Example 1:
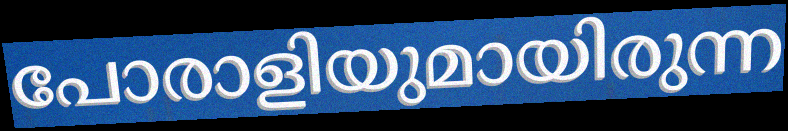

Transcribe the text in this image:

പോരാളിയുമായിരുന്ന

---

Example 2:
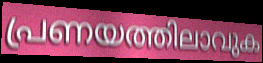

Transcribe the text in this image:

പ്രണയത്തിലാവുക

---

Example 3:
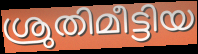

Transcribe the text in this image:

ശ്രുതിമീട്ടിയ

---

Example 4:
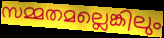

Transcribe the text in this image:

സമ്മതമല്ലെങ്കിലും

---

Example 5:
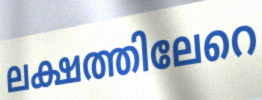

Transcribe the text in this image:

ലക്ഷത്തിലേറെ